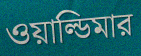
ওয়াল্ডিমার